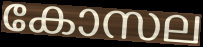
കോസല